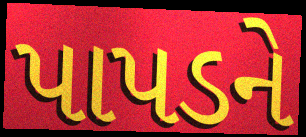
પાપડને